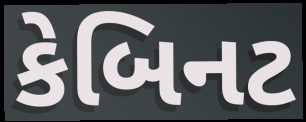
કેબિનટ